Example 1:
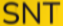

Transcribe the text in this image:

SNT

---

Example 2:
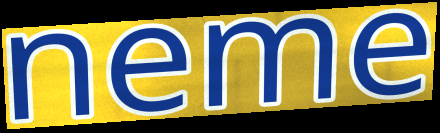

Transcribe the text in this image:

neme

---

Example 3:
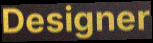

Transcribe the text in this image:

Designer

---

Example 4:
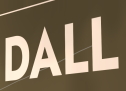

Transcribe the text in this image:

DALL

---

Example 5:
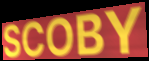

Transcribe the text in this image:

SCOBY